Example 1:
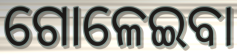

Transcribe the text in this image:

ଗୋଳେଇବା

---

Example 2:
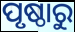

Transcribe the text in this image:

ପୃଷ୍ଠାରୁ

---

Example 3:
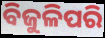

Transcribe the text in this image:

ବିଜୁଳିପରି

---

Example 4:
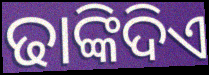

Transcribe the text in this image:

ଢାଙ୍କିଦିଏ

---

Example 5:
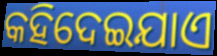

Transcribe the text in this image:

କହିଦେଇଯାଏ